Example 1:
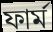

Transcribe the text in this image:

ফার্ম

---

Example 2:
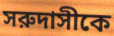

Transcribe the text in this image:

সরুদাসীকে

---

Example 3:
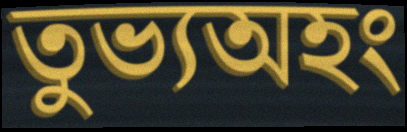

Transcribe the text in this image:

তুভ্যঅহং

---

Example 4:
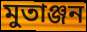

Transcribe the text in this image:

মুতাঞ্জন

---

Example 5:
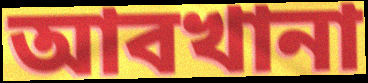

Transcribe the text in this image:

আবখানা